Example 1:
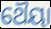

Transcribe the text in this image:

ଥୈୟା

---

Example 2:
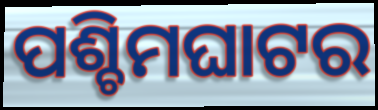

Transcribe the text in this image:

ପଶ୍ଚିମଘାଟର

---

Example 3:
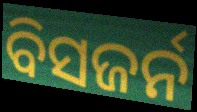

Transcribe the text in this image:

ବିସଜର୍ନ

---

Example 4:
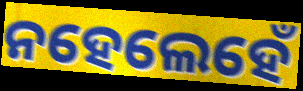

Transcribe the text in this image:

ନହେଲେହେଁ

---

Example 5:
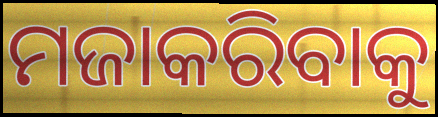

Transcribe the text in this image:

ମଜାକରିବାକୁ